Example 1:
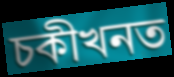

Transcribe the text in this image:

চকীখনত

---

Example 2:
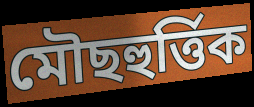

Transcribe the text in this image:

মৌছহুৰ্ত্তিক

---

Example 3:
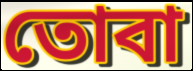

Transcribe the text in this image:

তোবা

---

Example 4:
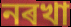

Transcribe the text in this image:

নৰখা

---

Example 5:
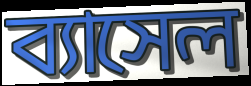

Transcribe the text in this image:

ব্যাসেল